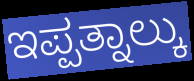
ಇಪ್ಪತ್ನಾಲ್ಕು